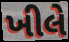
ખીલે